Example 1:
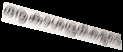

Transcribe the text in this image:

ആകാശഭൂമികളുടെ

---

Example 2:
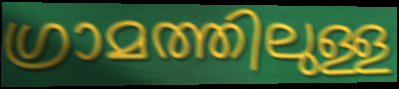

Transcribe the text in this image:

ഗ്രാമത്തിലുള്ള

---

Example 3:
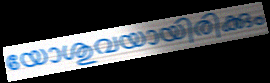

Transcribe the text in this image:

യോശുവയായിരിക്കും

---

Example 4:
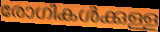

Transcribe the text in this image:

രോഗികൾക്കുള്ള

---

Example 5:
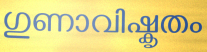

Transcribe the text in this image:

ഗുണാവിഷ്കൃതം